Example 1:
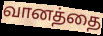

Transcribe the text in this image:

வானத்தை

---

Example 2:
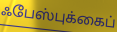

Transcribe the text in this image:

ஃபேஸ்புக்கைப்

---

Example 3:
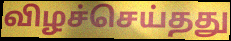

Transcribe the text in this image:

விழச்செய்தது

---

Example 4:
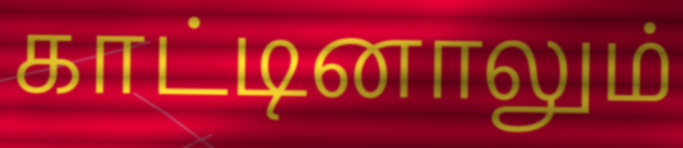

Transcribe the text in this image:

காட்டினாலும்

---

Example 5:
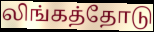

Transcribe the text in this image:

லிங்கத்தோடு